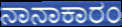
ನಾನಾಕಾರಂ